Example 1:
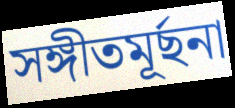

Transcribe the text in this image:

সঙ্গীতমূর্ছনা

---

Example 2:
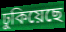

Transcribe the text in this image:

ঢুকিয়েছে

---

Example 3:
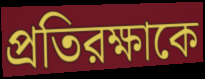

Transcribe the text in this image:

প্রতিরক্ষাকে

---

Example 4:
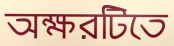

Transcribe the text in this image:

অক্ষরটিতে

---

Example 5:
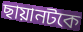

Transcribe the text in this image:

ছায়ানটকে